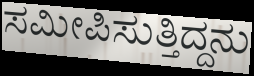
ಸಮೀಪಿಸುತ್ತಿದ್ದನು